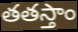
తతస్తాం